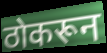
ठोकरून